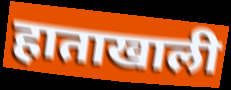
हाताखाली